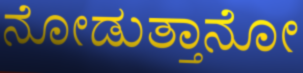
ನೋಡುತ್ತಾನೋ